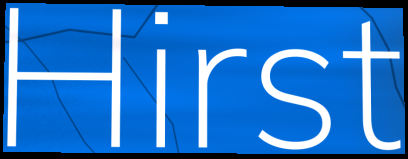
Hirst